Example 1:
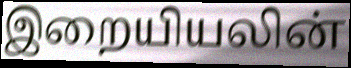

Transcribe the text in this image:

இறையியலின்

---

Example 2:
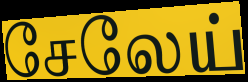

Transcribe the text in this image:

சேலேய்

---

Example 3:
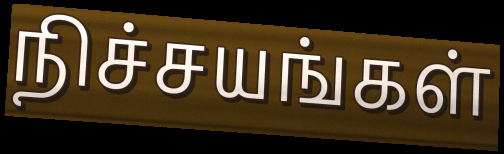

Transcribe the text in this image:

நிச்சயங்கள்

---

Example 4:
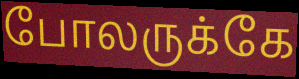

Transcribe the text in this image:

போலருக்கே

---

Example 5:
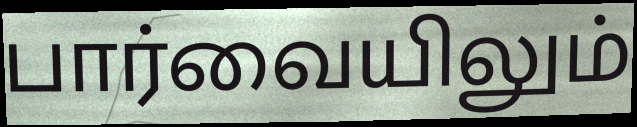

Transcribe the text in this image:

பார்வையிலும்